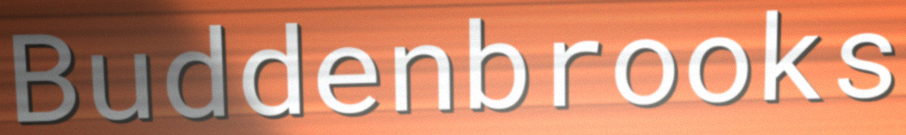
Buddenbrooks